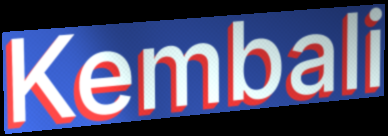
Kembali